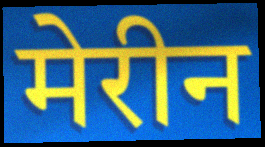
मेरीन